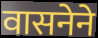
वासनेने